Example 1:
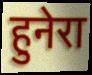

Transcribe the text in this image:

हुनेरा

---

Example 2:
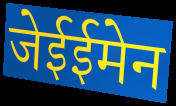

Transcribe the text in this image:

जेईईमेन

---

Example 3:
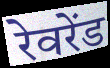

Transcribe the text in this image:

रेवरेंड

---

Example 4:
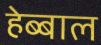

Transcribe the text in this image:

हेब्बाल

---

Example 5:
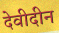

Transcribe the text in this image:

देवीदीन